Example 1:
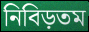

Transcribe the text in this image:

নিবিড়তম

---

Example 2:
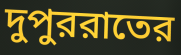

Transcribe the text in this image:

দুপুররাতের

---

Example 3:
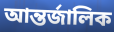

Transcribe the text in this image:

আন্তর্জালিক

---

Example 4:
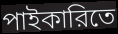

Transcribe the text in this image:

পাইকারিতে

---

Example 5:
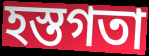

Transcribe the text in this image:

হস্তগতা